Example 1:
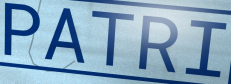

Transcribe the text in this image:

PATRI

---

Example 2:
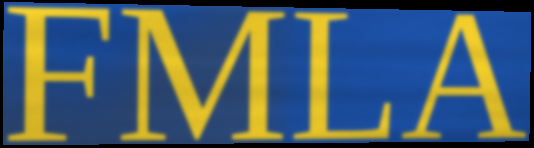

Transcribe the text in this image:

FMLA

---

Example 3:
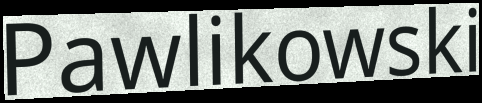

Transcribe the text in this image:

Pawlikowski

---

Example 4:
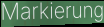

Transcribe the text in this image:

Markierung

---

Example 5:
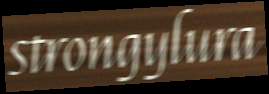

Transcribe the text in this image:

strongylura